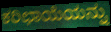
ಕರಿಛಾಯೆಯನ್ನು